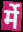
र्मे